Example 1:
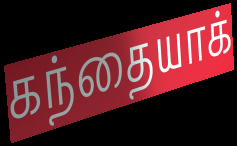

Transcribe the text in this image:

கந்தையாக்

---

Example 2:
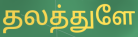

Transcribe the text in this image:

தலத்துளே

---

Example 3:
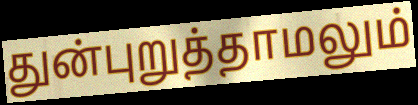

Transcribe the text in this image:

துன்புறுத்தாமலும்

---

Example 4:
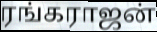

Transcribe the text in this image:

ரங்கராஜன்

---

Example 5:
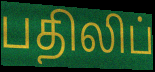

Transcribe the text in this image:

பதிலிப்